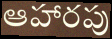
ఆహారపు